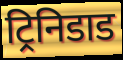
ट्रिनिडाड